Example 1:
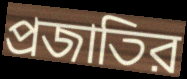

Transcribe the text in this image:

প্রজাতির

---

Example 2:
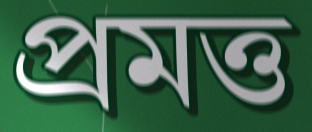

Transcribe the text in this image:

প্রমত্ত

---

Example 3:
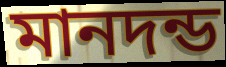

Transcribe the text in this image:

মানদন্ড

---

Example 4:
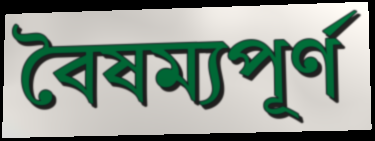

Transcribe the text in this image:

বৈষম্যপূর্ণ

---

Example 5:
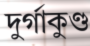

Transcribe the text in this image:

দুর্গাকুণ্ড